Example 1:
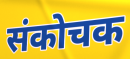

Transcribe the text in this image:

संकोचक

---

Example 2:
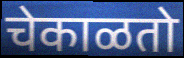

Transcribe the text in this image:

चेकाळतो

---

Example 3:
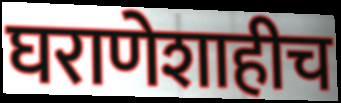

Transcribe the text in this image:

घराणेशाहीच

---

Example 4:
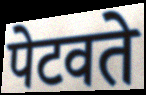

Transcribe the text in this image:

पेटवते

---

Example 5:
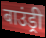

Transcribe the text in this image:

बाउंड्री